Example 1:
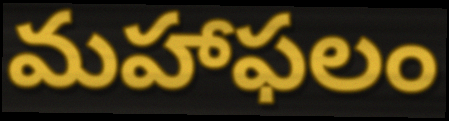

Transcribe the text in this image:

మహాఫలం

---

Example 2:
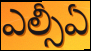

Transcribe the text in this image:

ఎల్సీఏ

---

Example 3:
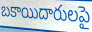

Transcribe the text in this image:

బకాయిదారులపై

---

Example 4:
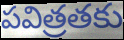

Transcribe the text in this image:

పవిత్రతకు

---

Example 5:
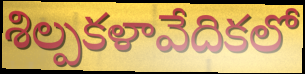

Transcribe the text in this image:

శిల్పకళావేదికలో